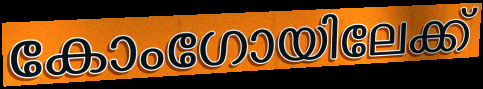
കോംഗോയിലേക്ക്